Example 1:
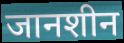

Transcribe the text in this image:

जानशीन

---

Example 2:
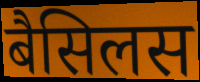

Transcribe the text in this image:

बैसिलस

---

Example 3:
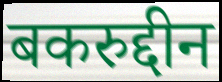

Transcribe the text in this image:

बकरुद्दीन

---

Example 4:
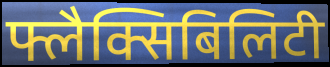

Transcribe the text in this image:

फ्लैक्सिबिलिटी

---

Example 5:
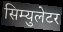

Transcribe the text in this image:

सिम्युलेटर